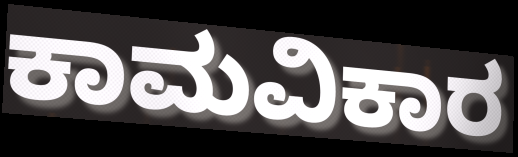
ಕಾಮವಿಕಾರ